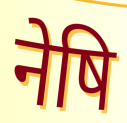
नेषि